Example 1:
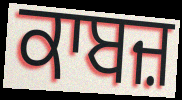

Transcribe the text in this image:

ਕਾਬਜ਼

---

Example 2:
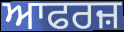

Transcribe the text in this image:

ਆਫਰਜ਼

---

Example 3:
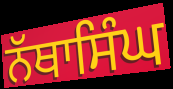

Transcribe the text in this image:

ਨੱਥਾਸਿੰਘ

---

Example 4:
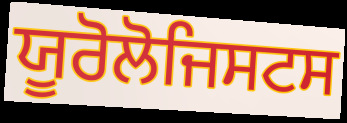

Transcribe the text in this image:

ਯੂਰੋਲੋਜਿਸਟਸ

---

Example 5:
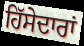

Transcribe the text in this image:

ਹਿੱਸੇਦਾਰਾਂ